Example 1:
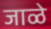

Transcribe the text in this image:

जाळे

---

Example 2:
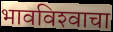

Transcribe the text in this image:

भावविश्वाचा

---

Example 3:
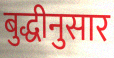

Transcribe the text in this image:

बुद्धीनुसार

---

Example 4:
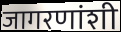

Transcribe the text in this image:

जागरणांशी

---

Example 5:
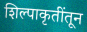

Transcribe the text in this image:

शिल्पाकृतींतून